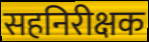
सहनिरीक्षक